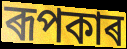
ৰূপকাৰ